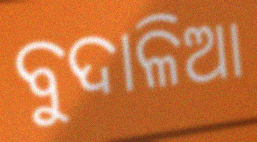
ବୁଦାଳିଆ